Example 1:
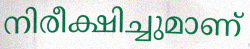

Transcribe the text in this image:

നിരീക്ഷിച്ചുമാണ്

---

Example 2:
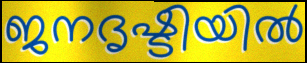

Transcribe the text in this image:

ജനദൃഷ്ടിയിൽ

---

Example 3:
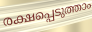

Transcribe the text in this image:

രക്ഷപ്പെടുത്താം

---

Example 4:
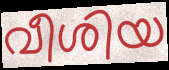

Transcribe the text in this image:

വീശിയ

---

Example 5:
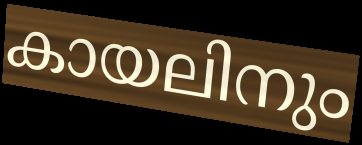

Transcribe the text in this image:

കായലിനും